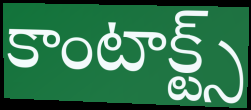
కాంటాక్ట్స్